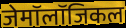
जेमॉलॉजिकल